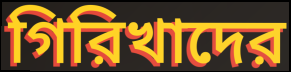
গিরিখাদের